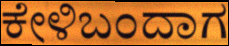
ಕೇಳಿಬಂದಾಗ